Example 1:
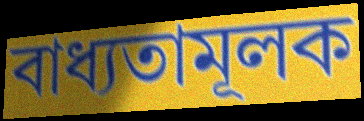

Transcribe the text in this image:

বাধ্যতামূলক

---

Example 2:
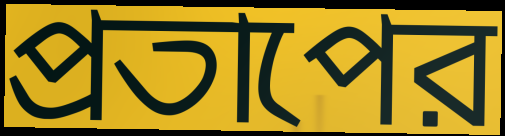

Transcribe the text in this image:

প্রতাপের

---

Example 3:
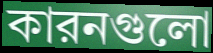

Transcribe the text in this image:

কারনগুলো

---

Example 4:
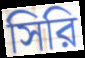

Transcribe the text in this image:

সিরি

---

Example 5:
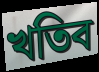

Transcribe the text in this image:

খতিব